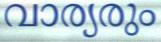
വാര്യരും